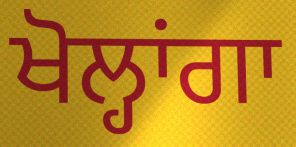
ਖੋਲ੍ਹਾਂਗਾ